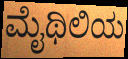
ಮೈಥಿಲಿಯ